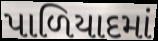
પાળિયાદમાં